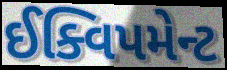
ઈક્વિપમેન્ટ